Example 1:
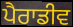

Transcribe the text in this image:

ਪੈਰਾਡੀਵ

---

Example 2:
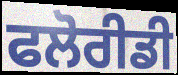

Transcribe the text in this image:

ਫਲੋਰੀਡੀ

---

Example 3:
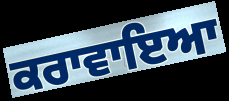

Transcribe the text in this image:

ਕਰਾਵਾਇਆ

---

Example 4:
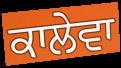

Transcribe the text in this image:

ਕਾਲੇਵਾ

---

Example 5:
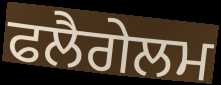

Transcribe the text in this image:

ਫਲੈਗੇਲਮ